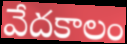
వేదకాలం